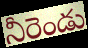
నీరెండు